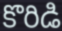
కొరిడి